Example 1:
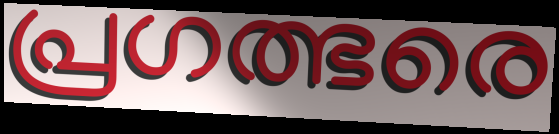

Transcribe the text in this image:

പ്രഗത്ഭരെ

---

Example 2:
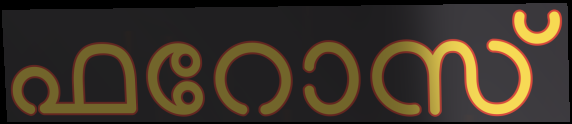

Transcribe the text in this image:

ഫറോസ്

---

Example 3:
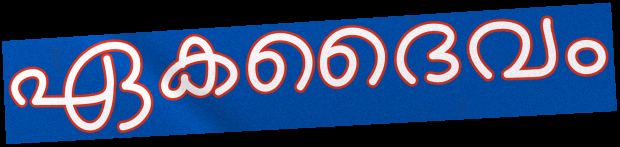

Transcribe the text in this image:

ഏകദൈവം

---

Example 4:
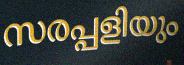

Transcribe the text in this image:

സരപ്പളിയും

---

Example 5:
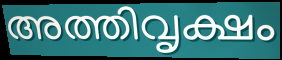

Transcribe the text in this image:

അത്തിവൃക്ഷം